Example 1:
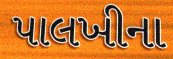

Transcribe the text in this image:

પાલખીના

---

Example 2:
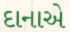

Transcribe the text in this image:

દાનાએ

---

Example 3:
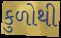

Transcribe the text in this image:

કુળોથી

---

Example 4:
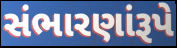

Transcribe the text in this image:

સંભારણાંરૂપે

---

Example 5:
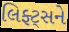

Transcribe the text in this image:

લિફ્ટ્સને